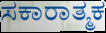
ಸಕಾರಾತ್ಮಕ